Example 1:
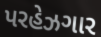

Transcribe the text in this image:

પરહેઝગાર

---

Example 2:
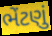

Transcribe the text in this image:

ભેંટણું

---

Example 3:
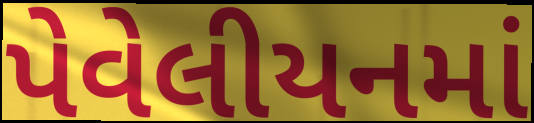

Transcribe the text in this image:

પેવેલીયનમાં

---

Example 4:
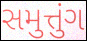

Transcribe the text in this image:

સમુત્તુંગ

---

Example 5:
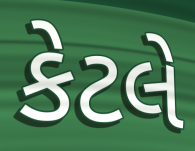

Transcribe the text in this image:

કેટલે